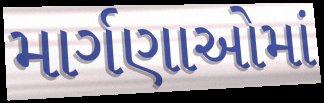
માર્ગણાઓમાં